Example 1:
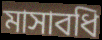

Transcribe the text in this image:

মাসাবধি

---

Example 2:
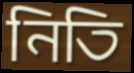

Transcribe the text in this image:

নিতি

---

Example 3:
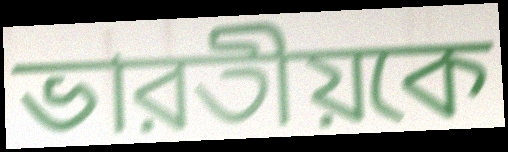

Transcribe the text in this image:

ভারতীয়কে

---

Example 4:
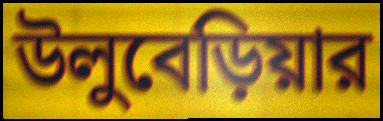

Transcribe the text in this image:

উলুবেড়িয়ার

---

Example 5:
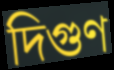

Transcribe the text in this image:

দিগুণ